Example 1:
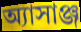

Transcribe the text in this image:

অ্যাসাঞ্জ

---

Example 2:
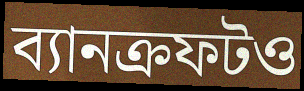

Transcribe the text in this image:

ব্যানক্রফটও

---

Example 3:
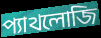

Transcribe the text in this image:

প্যাথলোজি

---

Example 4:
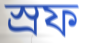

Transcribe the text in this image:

স্রফ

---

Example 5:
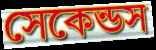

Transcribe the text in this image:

সেকেন্ডস